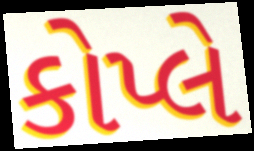
કોપ્લે